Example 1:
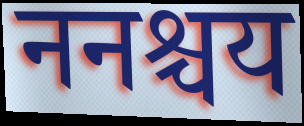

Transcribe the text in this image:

ननश्चय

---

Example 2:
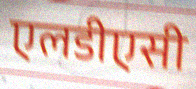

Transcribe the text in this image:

एलडीएसी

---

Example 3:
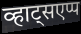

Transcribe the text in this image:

व्हाट्सएप्प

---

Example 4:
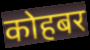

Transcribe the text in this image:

कोहबर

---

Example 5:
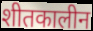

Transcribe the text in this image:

शीतकालीन